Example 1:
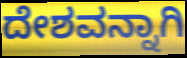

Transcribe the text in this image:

ದೇಶವನ್ನಾಗಿ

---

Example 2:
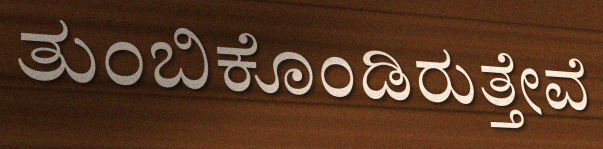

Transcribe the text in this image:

ತುಂಬಿಕೊಂಡಿರುತ್ತೇವೆ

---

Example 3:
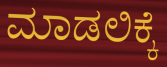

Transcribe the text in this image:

ಮಾಡಲಿಕ್ಕೆ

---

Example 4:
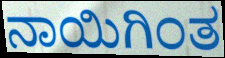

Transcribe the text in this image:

ನಾಯಿಗಿಂತ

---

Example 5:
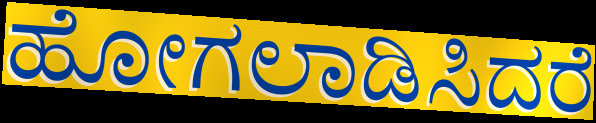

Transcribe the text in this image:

ಹೋಗಲಾಡಿಸಿದರೆ